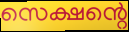
സെക്ഷന്റെ